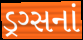
ડ્રગ્સનાં